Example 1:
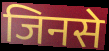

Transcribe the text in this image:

जिनसे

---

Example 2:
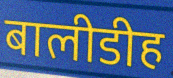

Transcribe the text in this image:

बालीडीह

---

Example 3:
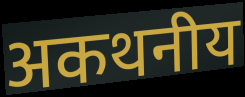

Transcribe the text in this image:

अकथनीय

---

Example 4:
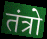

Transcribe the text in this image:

तंत्रो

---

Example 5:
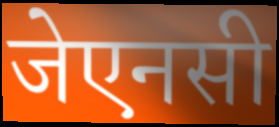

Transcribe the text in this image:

जेएनसी